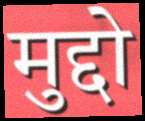
मुद्दो